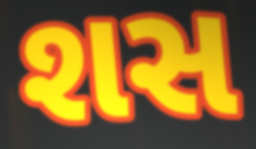
શસ